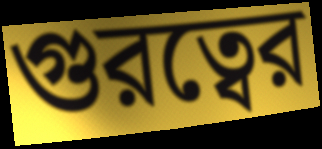
গুরত্বের